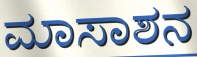
ಮಾಸಾಶನ